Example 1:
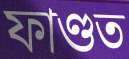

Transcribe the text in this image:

ফাণ্ডত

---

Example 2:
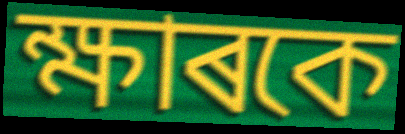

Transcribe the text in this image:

ক্ষাৰকে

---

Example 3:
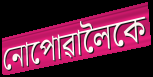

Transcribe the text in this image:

নোপোৱালৈকে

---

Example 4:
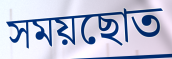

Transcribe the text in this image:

সময়ছোত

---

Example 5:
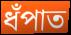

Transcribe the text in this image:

ধঁপাত